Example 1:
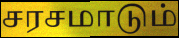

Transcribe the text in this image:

சரசமாடும்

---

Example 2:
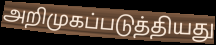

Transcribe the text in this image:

அறிமுகப்படுத்தியது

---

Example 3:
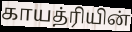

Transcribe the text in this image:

காயத்ரியின்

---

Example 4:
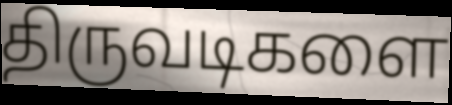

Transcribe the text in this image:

திருவடிகளை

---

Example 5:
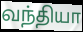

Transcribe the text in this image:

வந்தியா